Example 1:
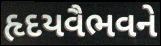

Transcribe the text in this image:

હૃદયવૈભવને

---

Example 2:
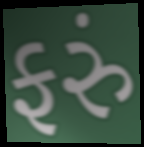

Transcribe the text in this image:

ફરું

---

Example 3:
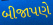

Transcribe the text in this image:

બીજાપણે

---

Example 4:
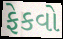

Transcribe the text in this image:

ફેકવો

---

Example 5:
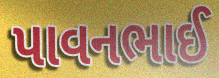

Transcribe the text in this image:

પાવનભાઈ